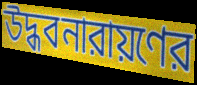
উদ্ধবনারায়ণের